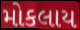
મોકલાય